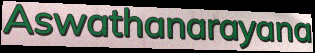
Aswathanarayana